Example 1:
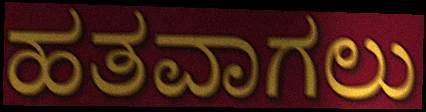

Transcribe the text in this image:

ಹತವಾಗಲು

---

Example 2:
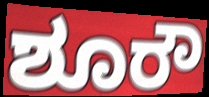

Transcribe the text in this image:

ಶೂರೌ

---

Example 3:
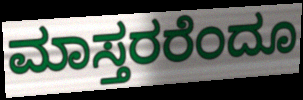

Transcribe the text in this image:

ಮಾಸ್ತರರೆಂದೂ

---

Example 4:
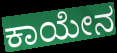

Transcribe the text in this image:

ಕಾಯೇನ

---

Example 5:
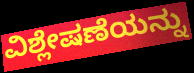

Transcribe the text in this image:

ವಿಶ್ಲೇಷಣೆಯನ್ನು